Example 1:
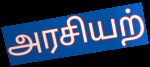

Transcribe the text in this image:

அரசியற்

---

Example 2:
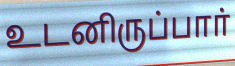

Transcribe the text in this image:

உடனிருப்பார்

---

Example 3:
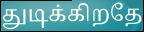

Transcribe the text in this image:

துடிக்கிறதே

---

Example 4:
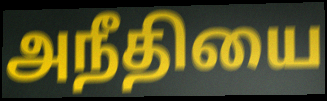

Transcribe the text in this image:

அநீதியை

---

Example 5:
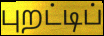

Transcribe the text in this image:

புறட்டிப்